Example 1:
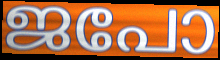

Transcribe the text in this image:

ജപോ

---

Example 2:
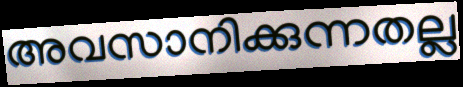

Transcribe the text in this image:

അവസാനിക്കുന്നതല്ല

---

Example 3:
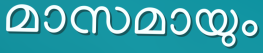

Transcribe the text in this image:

മാസമായും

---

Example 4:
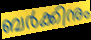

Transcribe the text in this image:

ബർക്കിനും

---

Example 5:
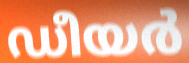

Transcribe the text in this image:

ഡീയർ